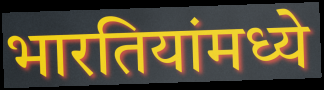
भारतियांमध्ये